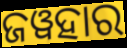
ଜୱହାର